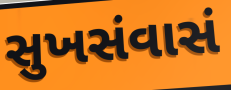
સુખસંવાસં